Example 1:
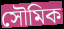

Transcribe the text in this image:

সৌমিক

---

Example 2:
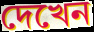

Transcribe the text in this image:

দেখেন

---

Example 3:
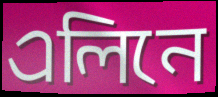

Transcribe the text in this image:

এলিনে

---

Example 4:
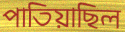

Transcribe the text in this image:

পাতিয়াছিল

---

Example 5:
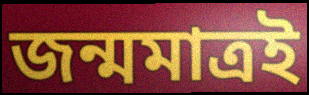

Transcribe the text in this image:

জন্মমাত্রই